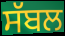
ਸੱਬਲ